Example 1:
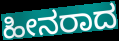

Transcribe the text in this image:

ಹೀನರಾದ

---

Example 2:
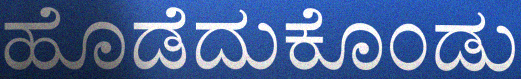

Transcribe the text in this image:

ಹೊಡೆದುಕೊಂಡು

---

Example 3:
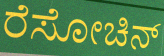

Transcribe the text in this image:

ರೆಸೋಚಿನ್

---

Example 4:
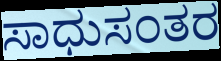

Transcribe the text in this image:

ಸಾಧುಸಂತರ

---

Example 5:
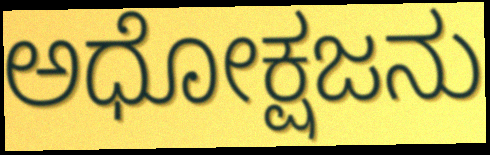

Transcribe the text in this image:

ಅಧೋಕ್ಷಜನು